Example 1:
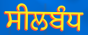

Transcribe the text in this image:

ਸੀਲਬੰਧ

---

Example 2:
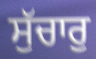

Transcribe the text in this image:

ਸੁੱਚਾਰੁ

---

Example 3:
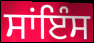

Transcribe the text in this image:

ਸਾਂਇੰਸ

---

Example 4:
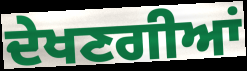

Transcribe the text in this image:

ਦੇਖਣਗੀਆਂ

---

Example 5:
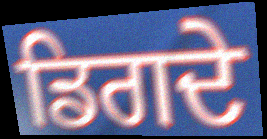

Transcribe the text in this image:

ਡਿਗਦੇ